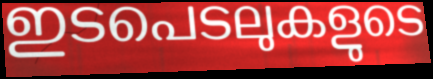
ഇടപെടലുകളുടെ